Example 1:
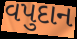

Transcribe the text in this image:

વપુદાન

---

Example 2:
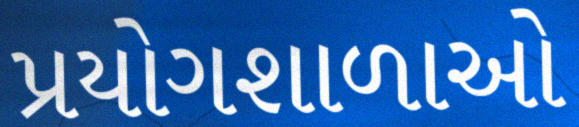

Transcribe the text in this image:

પ્રયોગશાળાઓ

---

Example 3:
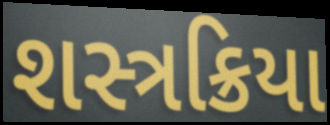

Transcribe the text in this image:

શસ્ત્રક્રિયા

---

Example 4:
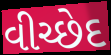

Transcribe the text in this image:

વીચ્છેદ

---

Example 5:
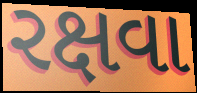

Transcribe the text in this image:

રક્ષવા